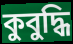
কুবুদ্ধি